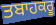
ਤਬਾਹਕਰੂ